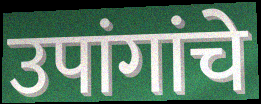
उपांगांचे